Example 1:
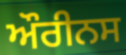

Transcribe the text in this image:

ਔਰੀਨਸ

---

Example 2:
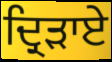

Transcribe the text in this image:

ਦ੍ਰਿੜਾਏ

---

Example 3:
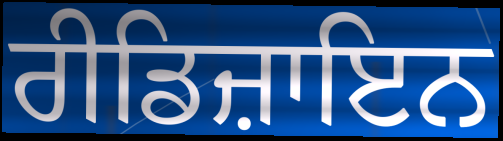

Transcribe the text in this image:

ਰੀਡਿਜ਼ਾਇਨ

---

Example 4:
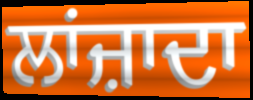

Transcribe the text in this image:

ਲਾਂਜ਼ਾਦਾ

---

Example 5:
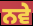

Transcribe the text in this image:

ਨਵੇ